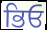
ਭਿਓ